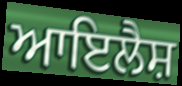
ਆਇਲੈਸ਼